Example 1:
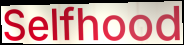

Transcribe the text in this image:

Selfhood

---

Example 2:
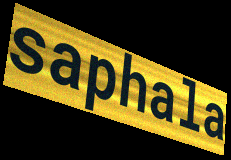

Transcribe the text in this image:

saphala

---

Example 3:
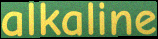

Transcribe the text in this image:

alkaline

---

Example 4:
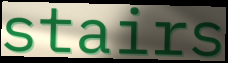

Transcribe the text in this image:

stairs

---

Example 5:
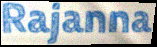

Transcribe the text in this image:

Rajanna